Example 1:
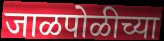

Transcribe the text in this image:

जाळपोळीच्या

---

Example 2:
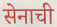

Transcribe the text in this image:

सेनाची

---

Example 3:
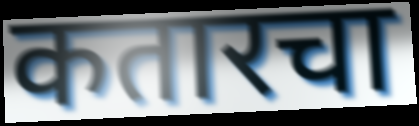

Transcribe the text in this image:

कतारचा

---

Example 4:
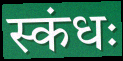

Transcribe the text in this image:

स्कंधः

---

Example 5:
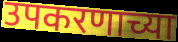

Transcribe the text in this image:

उपकरणाच्या